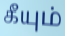
கீயும்